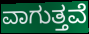
ವಾಗುತ್ತವೆ